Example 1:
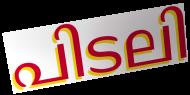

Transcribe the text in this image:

പിടലി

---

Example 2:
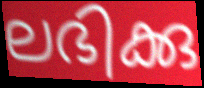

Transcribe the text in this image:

ലഭിക്കു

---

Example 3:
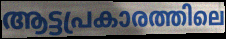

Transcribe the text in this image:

ആട്ടപ്രകാരത്തിലെ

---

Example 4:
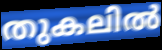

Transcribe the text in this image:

തുകലിൽ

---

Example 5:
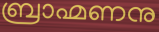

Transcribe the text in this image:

ബ്രാഹ്മണനു